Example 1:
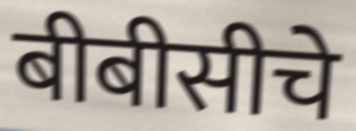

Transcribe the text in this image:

बीबीसीचे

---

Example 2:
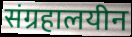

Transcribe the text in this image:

संग्रहालयीन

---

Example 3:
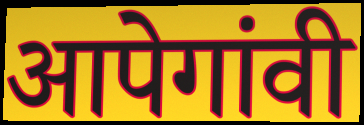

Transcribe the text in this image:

आपेगांवी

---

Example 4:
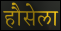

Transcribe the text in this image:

हौसेला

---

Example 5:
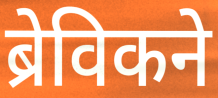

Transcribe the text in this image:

ब्रेविकने